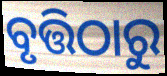
ବୃତ୍ତିଠାରୁ